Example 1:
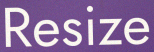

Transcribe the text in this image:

Resize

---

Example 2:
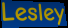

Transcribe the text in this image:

Lesley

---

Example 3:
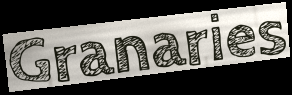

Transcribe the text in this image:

Granaries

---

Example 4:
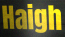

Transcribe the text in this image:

Haigh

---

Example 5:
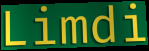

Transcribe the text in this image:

Limdi